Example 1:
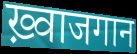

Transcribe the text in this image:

ख़्वाजगान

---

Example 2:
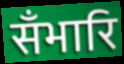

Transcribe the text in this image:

सँभारि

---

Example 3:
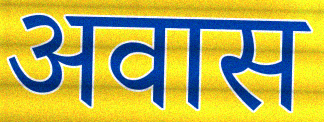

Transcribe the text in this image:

अवास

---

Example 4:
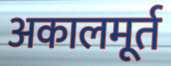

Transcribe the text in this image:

अकालमूर्त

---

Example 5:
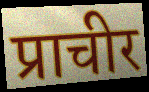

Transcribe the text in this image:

प्राचीर